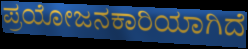
ಪ್ರಯೋಜನಕಾರಿಯಾಗಿದೆ